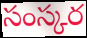
సంస్కర